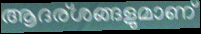
ആദര്ശങ്ങളുമാണ്